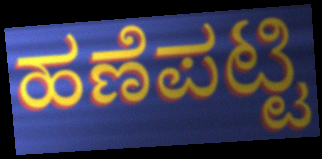
ಹಣೆಪಟ್ಟಿ